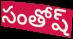
సంతోష్